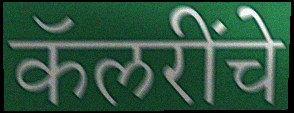
कॅलरींचे